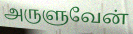
அருளுவேன்